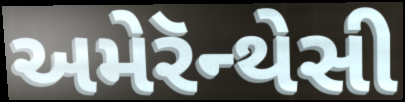
અમેરૅન્થેસી